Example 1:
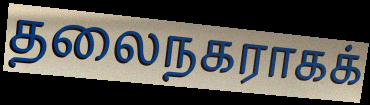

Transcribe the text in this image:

தலைநகராகக்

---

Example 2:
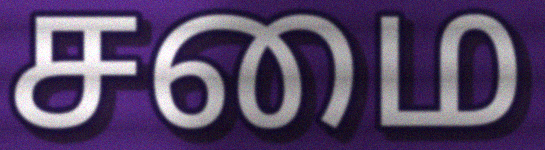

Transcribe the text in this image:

சமை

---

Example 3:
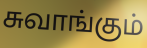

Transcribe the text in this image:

சுவாங்கும்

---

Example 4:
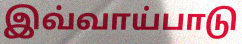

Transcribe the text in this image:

இவ்வாய்பாடு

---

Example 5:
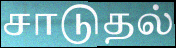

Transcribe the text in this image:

சாடுதல்